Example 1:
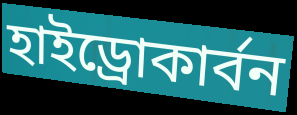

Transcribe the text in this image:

হাইড্রোকার্বন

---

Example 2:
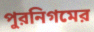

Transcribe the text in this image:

পুরনিগমের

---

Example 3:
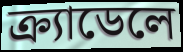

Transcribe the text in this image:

ক্র্যাডেলে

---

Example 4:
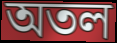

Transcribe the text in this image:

অতল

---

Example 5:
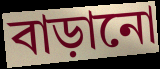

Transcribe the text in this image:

বাড়ানো